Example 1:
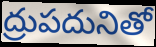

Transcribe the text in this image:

ద్రుపదునితో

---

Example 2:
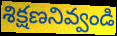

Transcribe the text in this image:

శిక్షణనివ్వండి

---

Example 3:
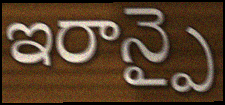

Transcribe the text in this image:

ఇరాన్పై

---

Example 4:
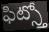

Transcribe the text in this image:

ఫిట్స్తో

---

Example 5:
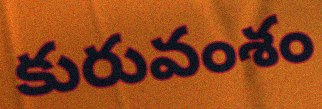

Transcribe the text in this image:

కురువంశం